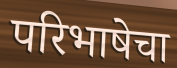
परिभाषेचा